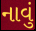
નાવું